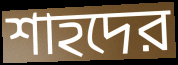
শাহদের